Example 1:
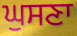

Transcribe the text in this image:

ਘੁਸਣਾ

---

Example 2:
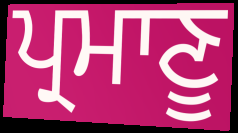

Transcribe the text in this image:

ਪ੍ਰਮਾਣੂ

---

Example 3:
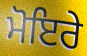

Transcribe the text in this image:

ਮੋਇਰੇ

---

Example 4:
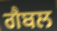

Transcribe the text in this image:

ਗੈਬਲ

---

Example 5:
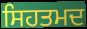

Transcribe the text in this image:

ਸਿਹਤਮਦ